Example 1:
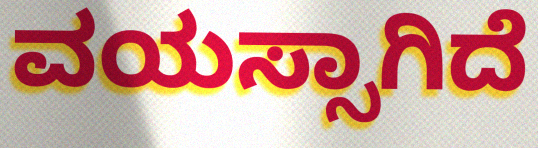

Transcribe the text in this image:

ವಯಸ್ಸಾಗಿದೆ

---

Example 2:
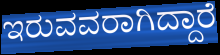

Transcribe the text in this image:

ಇರುವವರಾಗಿದ್ದಾರೆ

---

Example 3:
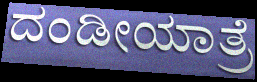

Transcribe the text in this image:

ದಂಡೀಯಾತ್ರೆ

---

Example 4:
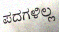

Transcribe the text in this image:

ಪದಗಳಿಲ್ಲ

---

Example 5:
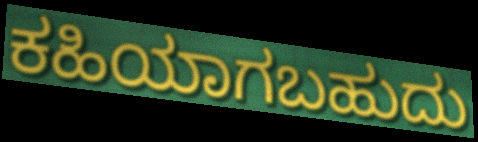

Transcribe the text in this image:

ಕಹಿಯಾಗಬಹುದು